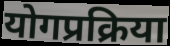
योगप्रक्रिया